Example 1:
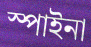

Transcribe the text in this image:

স্পাইনা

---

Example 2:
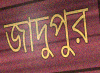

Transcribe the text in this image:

জাদুপুর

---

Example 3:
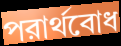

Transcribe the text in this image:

পরার্থবোধ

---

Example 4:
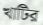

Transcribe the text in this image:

খাটির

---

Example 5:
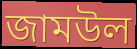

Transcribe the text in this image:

জামউল